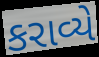
કરાવ્યે